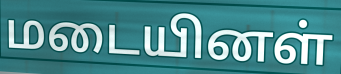
மடையினள்